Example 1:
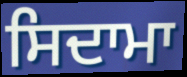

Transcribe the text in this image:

ਸਿਦਾਮਾ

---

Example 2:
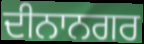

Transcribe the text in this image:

ਦੀਨਾਨਗਰ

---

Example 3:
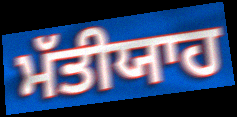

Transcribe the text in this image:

ਮੱਤੀਯਾਹ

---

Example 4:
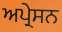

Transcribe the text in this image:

ਅਪ੍ਰੇਸਨ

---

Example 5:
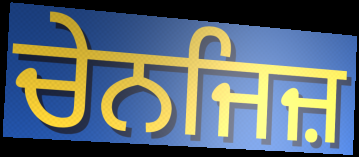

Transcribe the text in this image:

ਚੇਨਜਿਜ਼